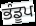
ਭੰਡੂਪ